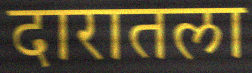
दारातला